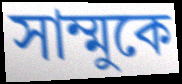
সাম্মুকে